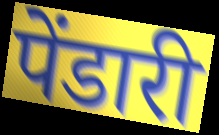
पेंडारी